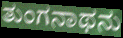
ತುಂಗನಾಥನು